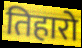
तिहारो